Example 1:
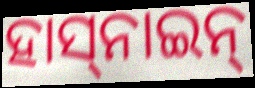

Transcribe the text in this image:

ହାସ୍‌ନାଇନ୍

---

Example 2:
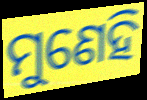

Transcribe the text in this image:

ମୁଣେହି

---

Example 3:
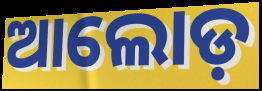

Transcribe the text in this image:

ଆଲୋଡ଼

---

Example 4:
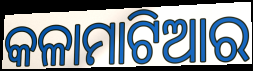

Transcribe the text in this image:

କଳାମାଟିଆର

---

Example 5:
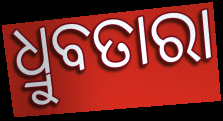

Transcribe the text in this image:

ଧ୍ରୁବତାରା